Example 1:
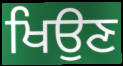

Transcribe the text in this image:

ਖਿਉਣ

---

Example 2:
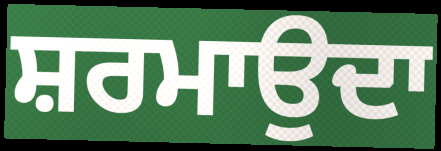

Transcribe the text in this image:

ਸ਼ਰਮਾਉਦਾ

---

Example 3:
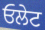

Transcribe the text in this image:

ਓਲੇਟ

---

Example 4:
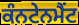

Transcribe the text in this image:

ਕੰਨਟੇਨਮੈਂਟ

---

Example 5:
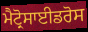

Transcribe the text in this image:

ਮੈਟ੍ਰੋਸਾਈਡਰੋਸ